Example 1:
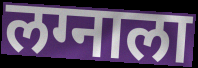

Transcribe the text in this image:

लग्नाला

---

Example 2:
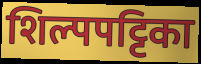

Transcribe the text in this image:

शिल्पपट्टिका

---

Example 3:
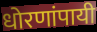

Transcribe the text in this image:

धोरणांपायी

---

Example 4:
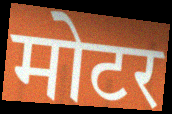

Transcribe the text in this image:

मोटर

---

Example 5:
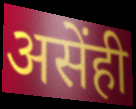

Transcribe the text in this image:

असेंही